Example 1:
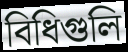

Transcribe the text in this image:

বিধিগুলি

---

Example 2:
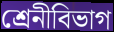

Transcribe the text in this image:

শ্রেনীবিভাগ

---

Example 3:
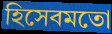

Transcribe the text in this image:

হিসেবমতো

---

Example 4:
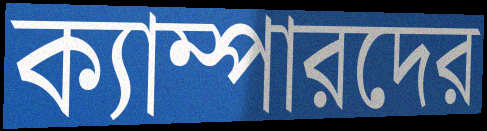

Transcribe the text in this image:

ক্যাম্পারদের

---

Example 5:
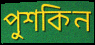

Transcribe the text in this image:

পুশকিন